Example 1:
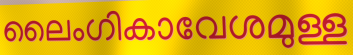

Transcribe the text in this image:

ലൈംഗികാവേശമുള്ള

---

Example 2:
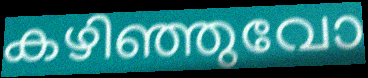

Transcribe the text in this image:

കഴിഞ്ഞുവോ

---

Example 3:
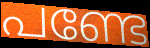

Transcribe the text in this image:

പണ്ടേ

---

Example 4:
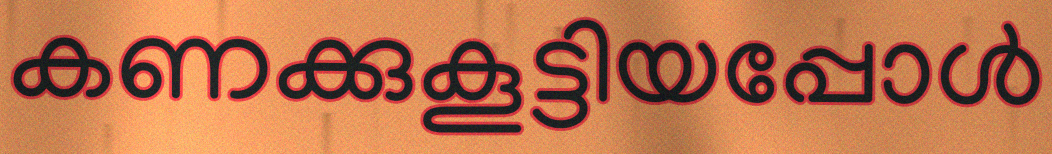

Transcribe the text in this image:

കണക്കുകൂട്ടിയപ്പോൾ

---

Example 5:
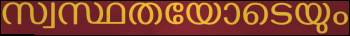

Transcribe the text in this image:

സ്വസ്ഥതയോടെയും